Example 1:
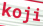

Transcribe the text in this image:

koji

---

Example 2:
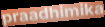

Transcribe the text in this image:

praadhimika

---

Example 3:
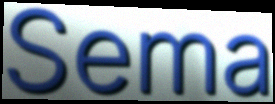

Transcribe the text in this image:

Sema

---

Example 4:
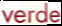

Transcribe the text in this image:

verde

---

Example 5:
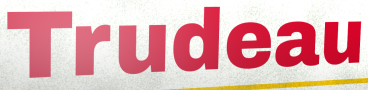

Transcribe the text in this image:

Trudeau